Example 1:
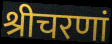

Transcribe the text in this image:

श्रीचरणां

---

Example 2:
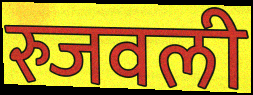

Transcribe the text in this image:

रुजवली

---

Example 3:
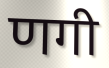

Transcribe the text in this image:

णगी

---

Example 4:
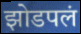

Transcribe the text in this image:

झोडपलं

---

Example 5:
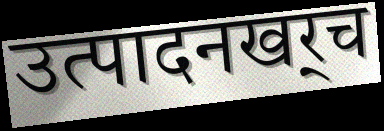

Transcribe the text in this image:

उत्पादनखर्च